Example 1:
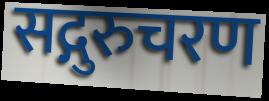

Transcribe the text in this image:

सद्गुरुचरण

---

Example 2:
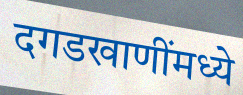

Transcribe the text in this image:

दगडखाणींमध्ये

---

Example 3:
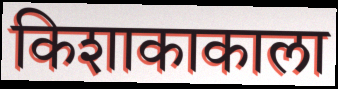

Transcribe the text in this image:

किशाकाकाला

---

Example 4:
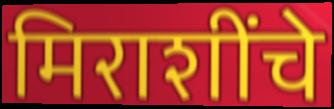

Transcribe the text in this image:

मिराशींचे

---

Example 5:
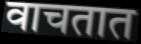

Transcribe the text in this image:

वाचतात